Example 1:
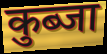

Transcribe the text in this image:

कुब्जा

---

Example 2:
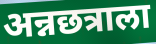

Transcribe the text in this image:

अन्नछत्राला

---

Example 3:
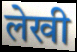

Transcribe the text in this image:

लेखी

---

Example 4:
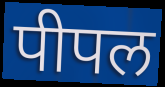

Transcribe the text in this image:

पीपल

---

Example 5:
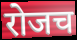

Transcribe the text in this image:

रोजच